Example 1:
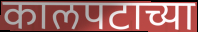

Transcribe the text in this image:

कालपटाच्या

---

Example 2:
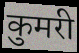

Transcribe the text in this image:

कुमरी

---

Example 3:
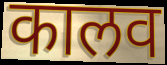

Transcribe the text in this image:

कालव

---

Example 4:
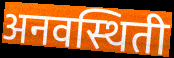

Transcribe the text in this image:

अनवस्थिती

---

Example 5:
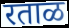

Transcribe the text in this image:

रताळ